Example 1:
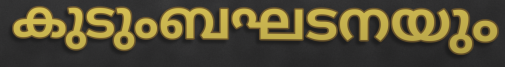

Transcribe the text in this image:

കുടുംബഘടനയും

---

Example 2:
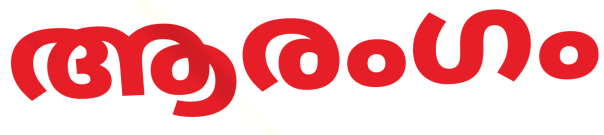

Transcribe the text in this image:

ആരംഗം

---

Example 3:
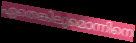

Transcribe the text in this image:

ഏതെങ്കിലുമൊന്നിനെ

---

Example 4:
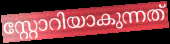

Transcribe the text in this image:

സ്റ്റോറിയാകുന്നത്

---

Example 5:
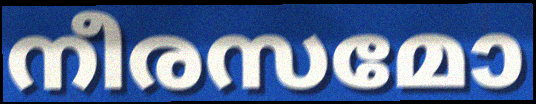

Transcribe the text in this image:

നീരസമോ